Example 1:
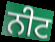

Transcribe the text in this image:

ਨੀਟ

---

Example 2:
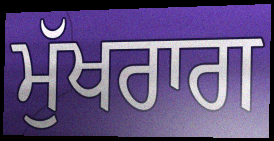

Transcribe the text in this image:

ਮੁੱਖਰਾਗ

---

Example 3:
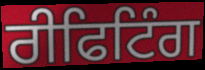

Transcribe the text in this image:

ਰੀਫਿਟਿੰਗ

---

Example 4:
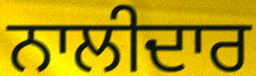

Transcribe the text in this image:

ਨਾਲੀਦਾਰ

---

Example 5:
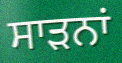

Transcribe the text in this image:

ਸਾੜਨਾਂ